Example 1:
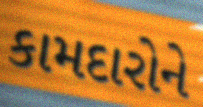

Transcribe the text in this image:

કામદારોને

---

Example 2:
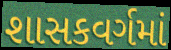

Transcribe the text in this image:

શાસકવર્ગમાં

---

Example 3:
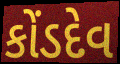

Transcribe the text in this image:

કોંડદેવ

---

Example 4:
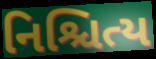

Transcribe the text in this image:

નિશ્ચિત્ય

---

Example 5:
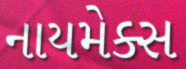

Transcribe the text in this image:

નાયમેક્સ